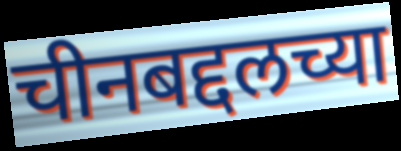
चीनबद्दलच्या